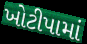
ખોટીપામાં